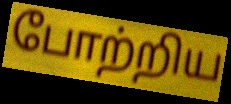
போற்றிய